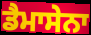
ਡੈਮਾਸੇਨਾ